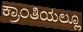
ಕ್ರಾಂತಿಯಲ್ಲೂ